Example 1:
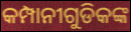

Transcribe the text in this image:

କମ୍ପାନୀଗୁଡିକଙ୍କ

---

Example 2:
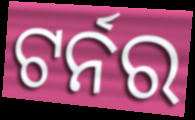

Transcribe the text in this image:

ଟର୍ନର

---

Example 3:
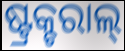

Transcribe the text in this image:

ଷ୍ଟ୍ରକ୍ଚରାଲ୍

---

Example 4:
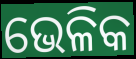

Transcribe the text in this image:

ଭେଳିକ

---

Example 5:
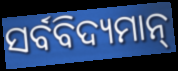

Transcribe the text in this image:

ସର୍ବବିଦ୍ୟମାନ୍